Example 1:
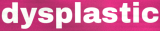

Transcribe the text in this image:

dysplastic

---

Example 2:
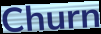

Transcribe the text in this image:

Churn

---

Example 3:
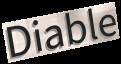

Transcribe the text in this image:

Diable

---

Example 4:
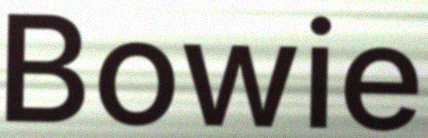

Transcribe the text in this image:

Bowie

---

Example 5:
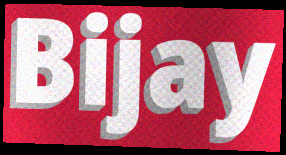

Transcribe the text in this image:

Bijay